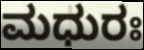
ಮಧುರಃ